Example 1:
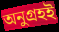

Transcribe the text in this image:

অনুগ্রহই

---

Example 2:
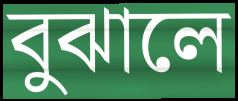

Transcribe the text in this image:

বুঝালে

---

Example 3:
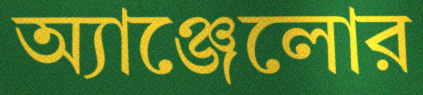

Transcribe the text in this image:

অ্যাঞ্জেলোর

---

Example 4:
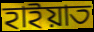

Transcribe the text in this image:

হাইয়াত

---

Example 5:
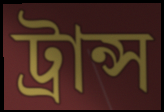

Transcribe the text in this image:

ট্রান্স